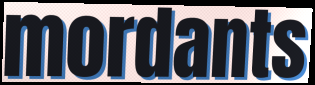
mordants